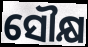
ସୌକ୍ଷ